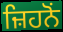
ਜ਼ਿਹਨੋਂ